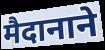
मैदानाने